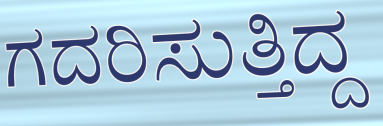
ಗದರಿಸುತ್ತಿದ್ದ